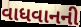
વાધવાનની